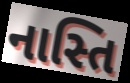
નાસ્તિ